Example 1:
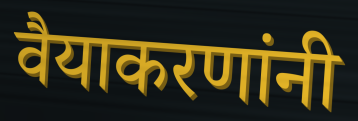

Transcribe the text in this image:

वैयाकरणांनी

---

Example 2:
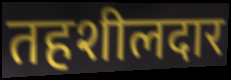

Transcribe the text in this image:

तहशीलदार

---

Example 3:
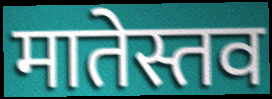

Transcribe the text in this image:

मातेस्तव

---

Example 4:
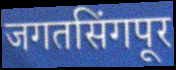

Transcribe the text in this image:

जगतसिंगपूर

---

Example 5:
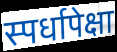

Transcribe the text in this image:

स्पर्धापेक्षा